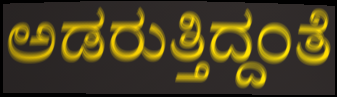
ಅಡರುತ್ತಿದ್ದಂತೆ